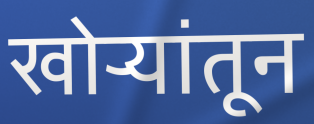
खोऱ्यांतून